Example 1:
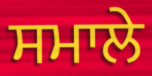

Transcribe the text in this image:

ਸਮਾਲੇ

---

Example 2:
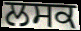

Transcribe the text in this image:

ਲਸਕ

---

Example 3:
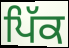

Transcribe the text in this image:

ਪਿੱਕ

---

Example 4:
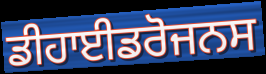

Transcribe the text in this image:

ਡੀਹਾਈਡਰੋਜਨਸ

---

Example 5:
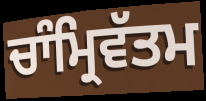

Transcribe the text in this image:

ਚਾੰਮ੍ਰਿਵੱਤਮ